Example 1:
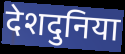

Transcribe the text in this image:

देशदुनिया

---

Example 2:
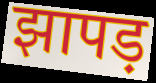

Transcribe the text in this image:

झापड़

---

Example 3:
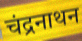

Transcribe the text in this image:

चंद्रनाथन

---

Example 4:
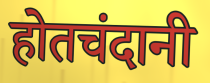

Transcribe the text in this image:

होतचंदानी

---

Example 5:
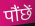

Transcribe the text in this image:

पौंछें